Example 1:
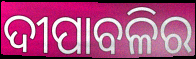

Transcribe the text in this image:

ଦୀପାବଳିର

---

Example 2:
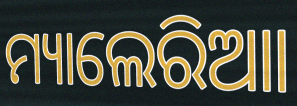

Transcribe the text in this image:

ମ୍ୟାଲେରିଆା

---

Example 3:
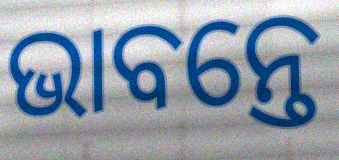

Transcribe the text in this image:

ଭାବନ୍ତେ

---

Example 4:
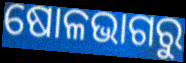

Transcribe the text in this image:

ଷୋଳଭାଗରୁ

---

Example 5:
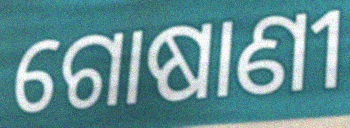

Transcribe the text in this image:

ଗୋଷାଣୀ